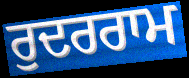
ਰੁਦਰਰਾਮ